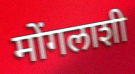
मोंगलाशी